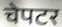
चेपटर